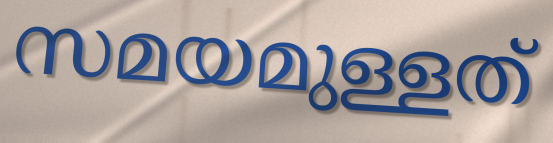
സമയമുള്ളത്